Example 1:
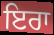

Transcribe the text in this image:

ਇਰਾ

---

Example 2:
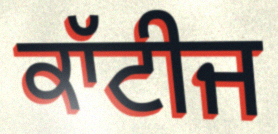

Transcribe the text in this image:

ਕਾੱਟੀਜ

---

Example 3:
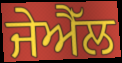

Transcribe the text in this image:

ਜੇਐੱਲ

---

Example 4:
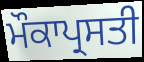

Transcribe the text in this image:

ਮੌਕਾਪ੍ਰਸਤੀ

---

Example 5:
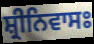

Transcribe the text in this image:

ਸ਼੍ਰੀਨਿਵਾਸਃ